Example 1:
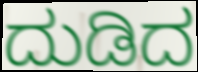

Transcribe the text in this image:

ದುಡಿದ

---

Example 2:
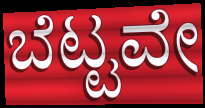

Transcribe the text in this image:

ಬೆಟ್ಟವೇ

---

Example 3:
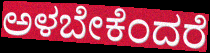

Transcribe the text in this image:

ಅಳಬೇಕೆಂದರೆ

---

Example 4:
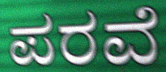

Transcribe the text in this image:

ಪರವೆ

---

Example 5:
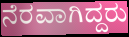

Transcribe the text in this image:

ನೆರವಾಗಿದ್ದರು